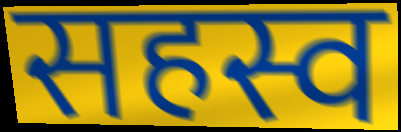
सहस्व